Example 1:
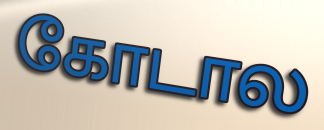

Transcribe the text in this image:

கோடால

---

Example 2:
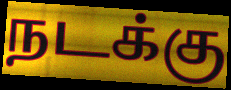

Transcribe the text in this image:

நடக்கு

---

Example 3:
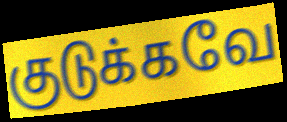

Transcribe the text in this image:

குடுக்கவே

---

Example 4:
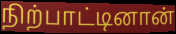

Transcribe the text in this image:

நிற்பாட்டினான்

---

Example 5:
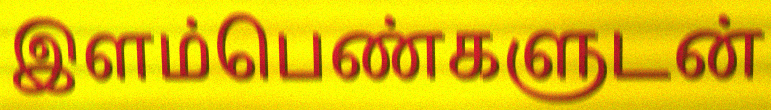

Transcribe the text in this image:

இளம்பெண்களுடன்